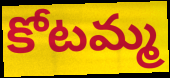
కోటమ్మ